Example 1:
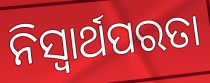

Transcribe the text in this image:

ନିସ୍ଵାର୍ଥପରତା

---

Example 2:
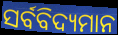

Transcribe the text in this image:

ସର୍ବବିଦ୍ୟମାନ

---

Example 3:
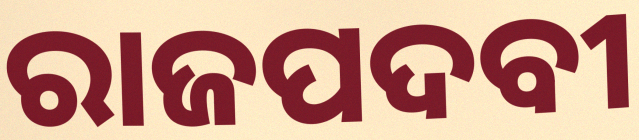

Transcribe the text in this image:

ରାଜପଦବୀ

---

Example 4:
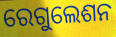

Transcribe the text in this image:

ରେଗୁଲେଶନ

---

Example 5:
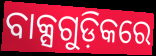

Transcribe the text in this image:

ବାକ୍ସଗୁଡ଼ିକରେ